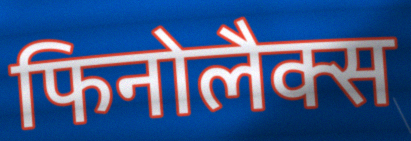
फिनोलैक्स